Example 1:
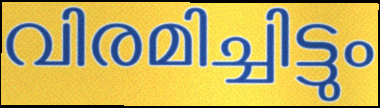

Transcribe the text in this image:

വിരമിച്ചിട്ടും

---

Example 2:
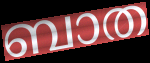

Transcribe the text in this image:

ബാത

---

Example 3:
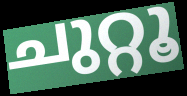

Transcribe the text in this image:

ചുറ്റൂ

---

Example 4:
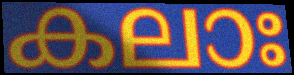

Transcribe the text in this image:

കലാഃ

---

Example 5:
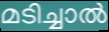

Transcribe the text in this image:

മടിച്ചാൽ